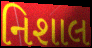
નિશાલ